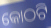
କୋଠଟି